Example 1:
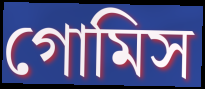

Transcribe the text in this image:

গোমিস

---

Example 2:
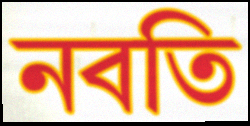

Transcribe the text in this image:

নবতি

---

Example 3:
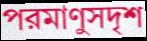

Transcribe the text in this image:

পরমাণুসদৃশ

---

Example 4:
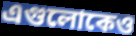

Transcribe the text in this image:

এগুলোকেও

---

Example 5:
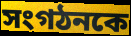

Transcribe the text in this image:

সংগঠনকে